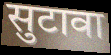
सुटावा